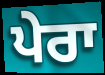
ਪੇਰਾ